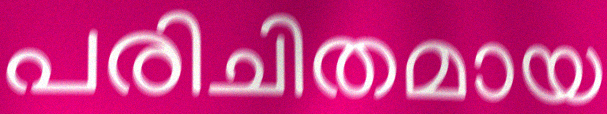
പരിചിതമായ